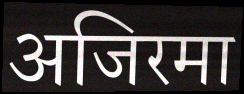
अजिरमा